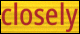
closely